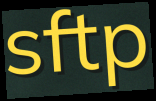
sftp